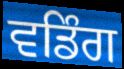
ਵਡਿੰਗ